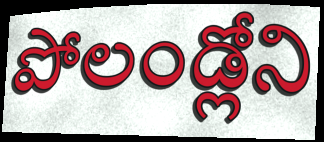
పోలండ్లోని